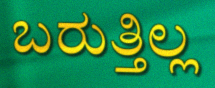
ಬರುತ್ತಿಲ್ಲ